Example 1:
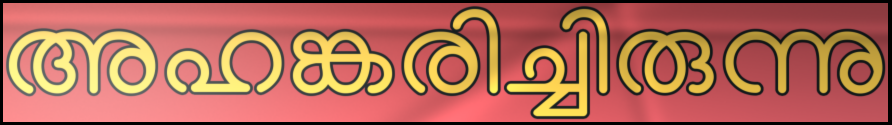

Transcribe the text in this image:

അഹങ്കരിച്ചിരുന്നു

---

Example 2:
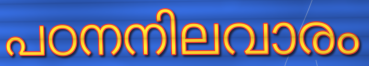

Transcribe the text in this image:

പഠനനിലവാരം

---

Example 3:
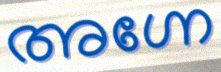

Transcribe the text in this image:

അഗ്നേ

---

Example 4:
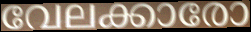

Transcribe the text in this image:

വേലക്കാരോ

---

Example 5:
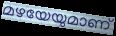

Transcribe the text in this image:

മഴയേയുമാണ്